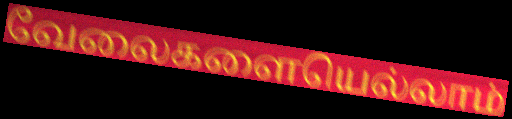
வேலைகளையெல்லாம்